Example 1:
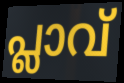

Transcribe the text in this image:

പ്ലാവ്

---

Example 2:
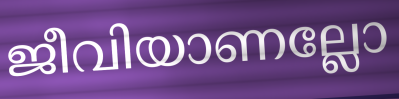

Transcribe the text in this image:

ജീവിയാണല്ലോ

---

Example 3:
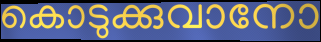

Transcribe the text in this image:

കൊടുക്കുവാനോ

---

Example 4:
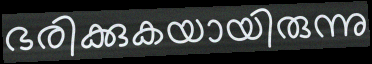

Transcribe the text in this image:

ഭരിക്കുകയായിരുന്നു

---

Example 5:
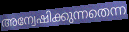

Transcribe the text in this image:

അന്വേഷിക്കുന്നതെന്ന